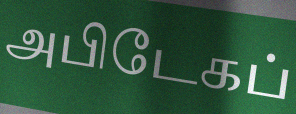
அபிடேகப்